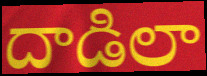
దాడిలా